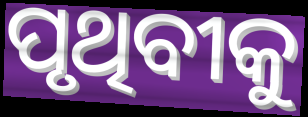
ପୃଥିବୀକୁ